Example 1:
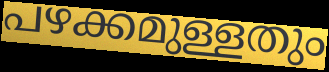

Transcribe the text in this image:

പഴക്കമുള്ളതും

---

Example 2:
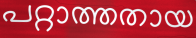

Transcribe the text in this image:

പറ്റാത്തതായ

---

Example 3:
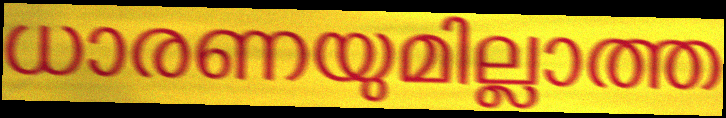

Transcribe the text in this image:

ധാരണയുമില്ലാത്ത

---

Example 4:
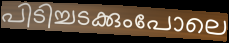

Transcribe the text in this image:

പിടിച്ചടക്കുംപോലെ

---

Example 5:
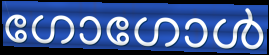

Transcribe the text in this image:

ഗോഗോൾ